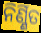
ନିର୍ଣ୍ଣିତ